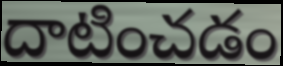
దాటించడం